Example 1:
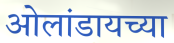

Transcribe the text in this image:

ओलांडायच्या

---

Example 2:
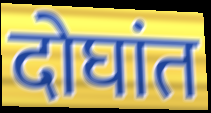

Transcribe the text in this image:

दोघांत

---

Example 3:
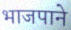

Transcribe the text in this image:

भाजपाने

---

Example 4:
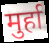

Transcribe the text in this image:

मुर्हा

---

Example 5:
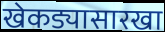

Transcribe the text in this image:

खेकड्यासारखा